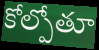
కోల్పోతూ